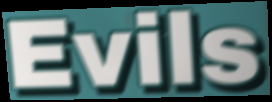
Evils